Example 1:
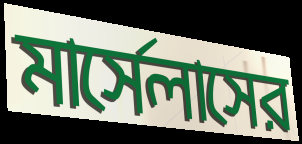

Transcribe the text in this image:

মার্সেলাসের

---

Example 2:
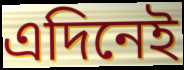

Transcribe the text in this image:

এদিনেই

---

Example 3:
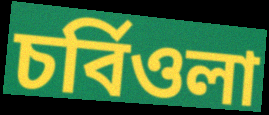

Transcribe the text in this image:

চর্বিওলা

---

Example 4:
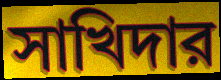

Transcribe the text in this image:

সাখিদার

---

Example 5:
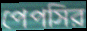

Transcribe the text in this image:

পেপসির